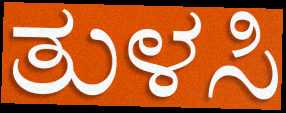
ತುಳಸಿ